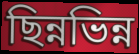
ছিন্নভিন্ন